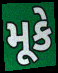
મૂકે